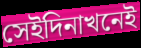
সেইদিনাখনেই